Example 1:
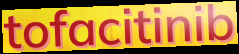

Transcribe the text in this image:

tofacitinib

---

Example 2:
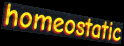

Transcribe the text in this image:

homeostatic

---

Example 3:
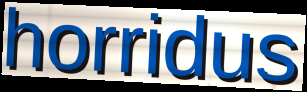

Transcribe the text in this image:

horridus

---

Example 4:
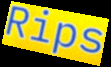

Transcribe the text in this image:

Rips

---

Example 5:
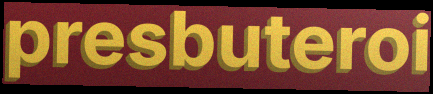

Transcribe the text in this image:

presbuteroi